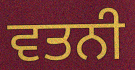
ਵਤਨੀ